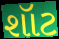
શૉટ